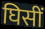
घिसीं